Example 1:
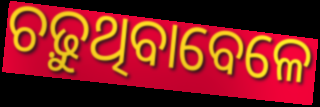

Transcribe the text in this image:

ଚଢ଼ୁଥିବାବେଳେ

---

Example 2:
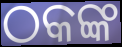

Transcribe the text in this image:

ଠକଙ୍କ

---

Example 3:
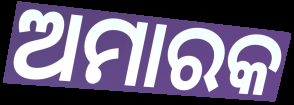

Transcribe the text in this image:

ଅମାରକ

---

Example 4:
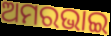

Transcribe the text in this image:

ଅମରଭାଇ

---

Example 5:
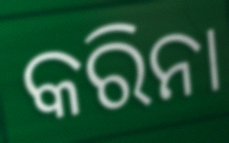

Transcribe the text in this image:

କରିନା